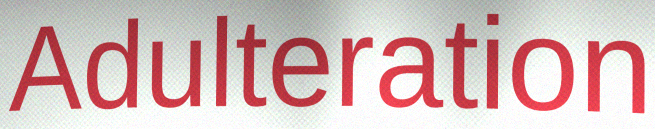
Adulteration